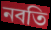
নবতি